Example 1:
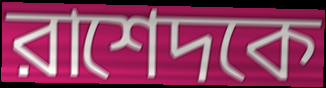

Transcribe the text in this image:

রাশেদকে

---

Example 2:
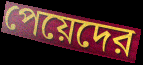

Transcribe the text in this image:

পেয়েদের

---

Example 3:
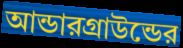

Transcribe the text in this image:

আন্ডারগ্রাউন্ডের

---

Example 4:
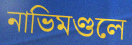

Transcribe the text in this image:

নাভিমণ্ডলে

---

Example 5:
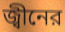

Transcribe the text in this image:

জ্বীনের